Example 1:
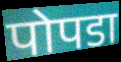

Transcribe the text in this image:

पोपडा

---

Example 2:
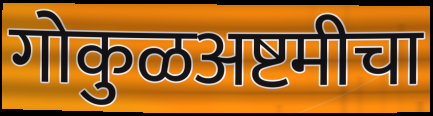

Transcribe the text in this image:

गोकुळअष्टमीचा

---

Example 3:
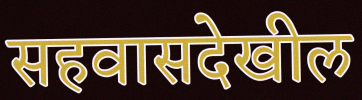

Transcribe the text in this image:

सहवासदेखील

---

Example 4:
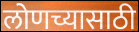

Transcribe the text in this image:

लोणच्यासाठी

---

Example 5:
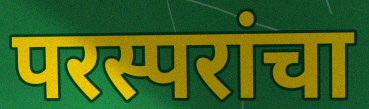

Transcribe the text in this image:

परस्परांचा